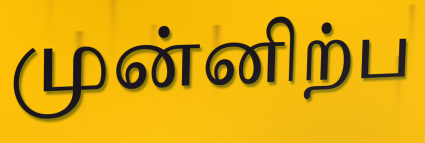
முன்னிற்ப